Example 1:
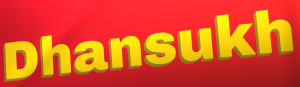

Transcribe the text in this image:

Dhansukh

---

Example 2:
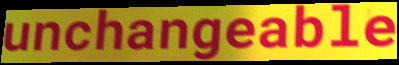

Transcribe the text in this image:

unchangeable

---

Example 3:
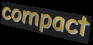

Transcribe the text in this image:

compact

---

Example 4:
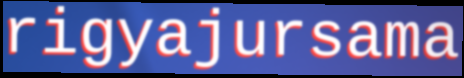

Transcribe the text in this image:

rigyajursama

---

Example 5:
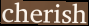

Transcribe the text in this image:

cherish